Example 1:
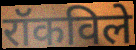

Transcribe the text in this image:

रॉकविले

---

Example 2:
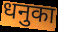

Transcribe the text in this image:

धनुका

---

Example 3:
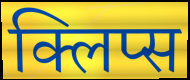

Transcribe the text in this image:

क्लिप्स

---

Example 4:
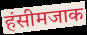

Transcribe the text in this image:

हंसीमजाक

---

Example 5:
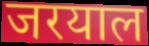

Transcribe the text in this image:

जरयाल